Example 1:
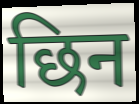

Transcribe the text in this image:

छिन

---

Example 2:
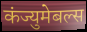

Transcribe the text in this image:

कंज्युमेबल्स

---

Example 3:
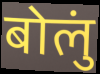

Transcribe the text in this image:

बोलुं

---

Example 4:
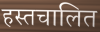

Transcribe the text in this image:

हस्तचालित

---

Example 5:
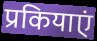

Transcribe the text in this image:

प्रकियाएं